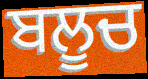
ਬਲੂਚ